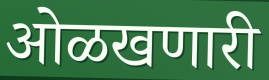
ओळखणारी